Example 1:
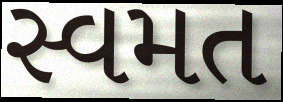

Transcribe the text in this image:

સ્વમત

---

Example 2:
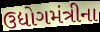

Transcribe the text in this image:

ઉદ્યોગમંત્રીના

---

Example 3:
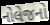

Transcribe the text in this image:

નોલેજનો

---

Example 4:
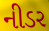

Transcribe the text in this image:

નીડર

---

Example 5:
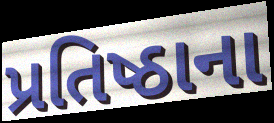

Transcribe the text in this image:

પ્રતિષ્ઠાના